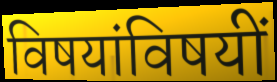
विषयांविषयीं